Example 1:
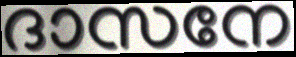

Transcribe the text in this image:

ദാസനേ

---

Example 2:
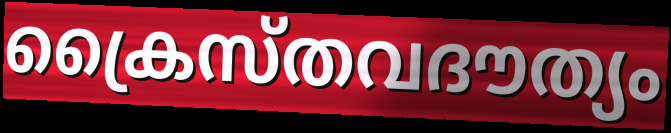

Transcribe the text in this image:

ക്രൈസ്തവദൗത്യം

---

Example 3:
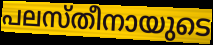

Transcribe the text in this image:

പലസ്തീനായുടെ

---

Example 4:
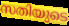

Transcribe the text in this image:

സതിയുടെ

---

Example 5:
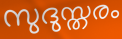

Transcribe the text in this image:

സുദുസ്തരം